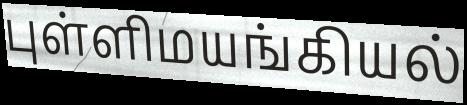
புள்ளிமயங்கியல்